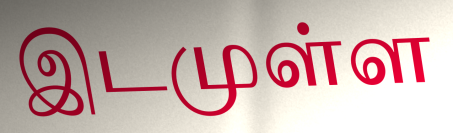
இடமுள்ள